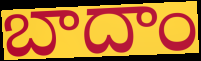
బాదాం